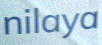
nilaya